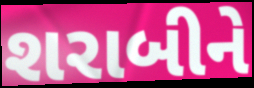
શરાબીને